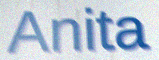
Anita